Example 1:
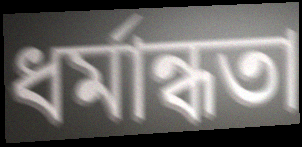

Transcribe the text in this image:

ধৰ্মান্ধতা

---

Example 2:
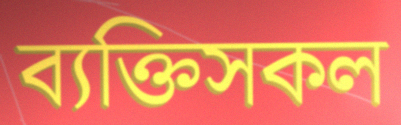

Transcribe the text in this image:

ব্যক্তিসকল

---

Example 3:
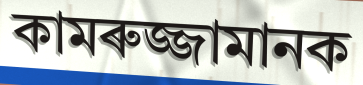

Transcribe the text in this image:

কামৰুজ্জামানক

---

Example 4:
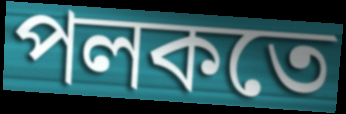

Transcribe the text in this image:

পলকতে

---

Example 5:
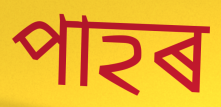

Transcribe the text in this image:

পাহৰ